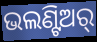
ଭଲଣ୍ଟିଅର୍